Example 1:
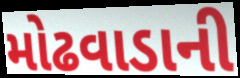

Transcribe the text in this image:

મોઢવાડાની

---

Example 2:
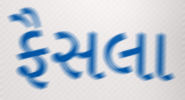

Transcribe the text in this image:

ફૈસલા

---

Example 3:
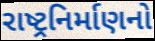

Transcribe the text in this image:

રાષ્ટ્રનિર્માણનો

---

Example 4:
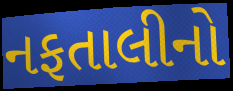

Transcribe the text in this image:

નફતાલીનો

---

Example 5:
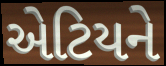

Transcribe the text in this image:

એટિયને